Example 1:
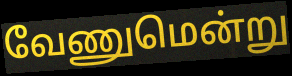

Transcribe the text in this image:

வேணுமென்று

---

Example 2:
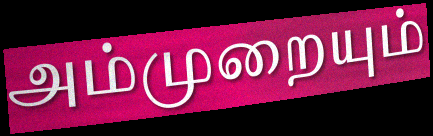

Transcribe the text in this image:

அம்முறையும்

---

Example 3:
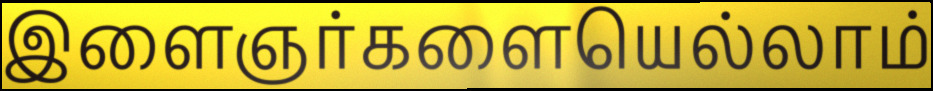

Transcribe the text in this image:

இளைஞர்களையெல்லாம்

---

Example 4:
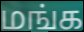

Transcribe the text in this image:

மங்க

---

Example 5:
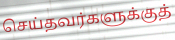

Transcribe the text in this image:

செய்தவர்களுக்குத்